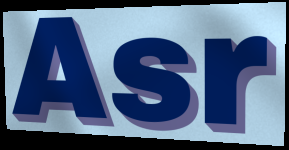
Asr